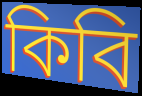
কিবি